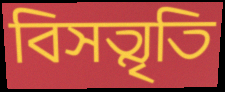
বিসত্মৃতি